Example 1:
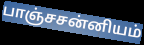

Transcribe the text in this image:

பாஞ்சசன்னியம்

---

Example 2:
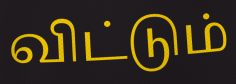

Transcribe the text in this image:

விட்டும்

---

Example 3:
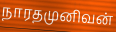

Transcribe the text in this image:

நாரதமுனிவன்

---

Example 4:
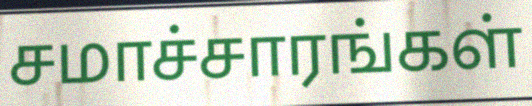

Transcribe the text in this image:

சமாச்சாரங்கள்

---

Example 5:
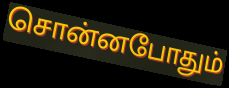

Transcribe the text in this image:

சொன்னபோதும்